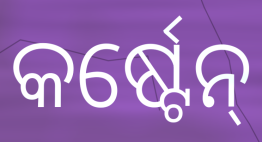
କର୍ଷ୍ଟେନ୍